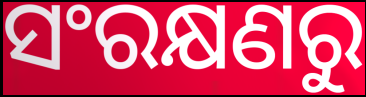
ସଂରକ୍ଷଣରୁ